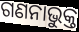
ଗଣନାଭୁକ୍ତ